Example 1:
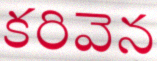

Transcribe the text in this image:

కరివెన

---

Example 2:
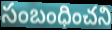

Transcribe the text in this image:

సంబంధించని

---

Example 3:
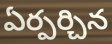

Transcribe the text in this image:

ఏర్పర్చిన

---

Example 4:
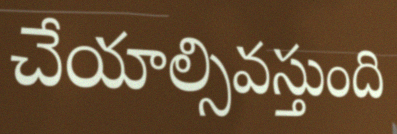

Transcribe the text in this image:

చేయాల్సివస్తుంది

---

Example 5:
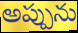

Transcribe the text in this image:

అప్పును